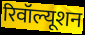
रिवॉल्यूशन